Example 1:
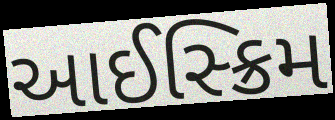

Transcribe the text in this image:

આઈસ્ક્રિમ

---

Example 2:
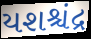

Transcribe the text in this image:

યશશ્ચંદ્ર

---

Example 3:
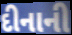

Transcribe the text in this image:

દીનાની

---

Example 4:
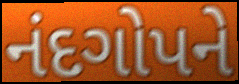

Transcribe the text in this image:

નંદગોપને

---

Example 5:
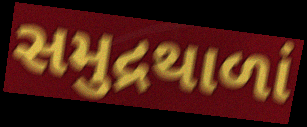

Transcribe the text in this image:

સમુદ્રથાળાં